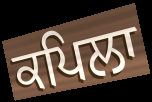
ਕਪਿਲਾ